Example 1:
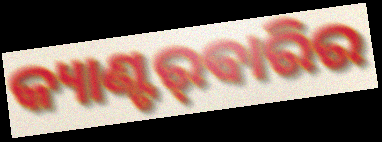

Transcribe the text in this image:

କ୍ୟାଣ୍ଟର୍‌ବାରିର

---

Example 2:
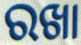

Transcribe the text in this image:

ରଖା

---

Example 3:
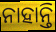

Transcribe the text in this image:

ନାହାନ୍ତି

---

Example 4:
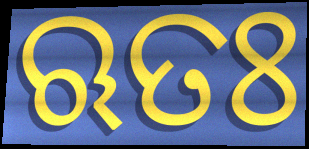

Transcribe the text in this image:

ଋତଃ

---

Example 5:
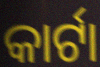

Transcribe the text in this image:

କାର୍ଟା